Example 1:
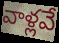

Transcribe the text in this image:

వాళ్లవే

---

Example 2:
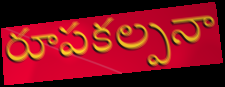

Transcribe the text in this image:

రూపకల్పనా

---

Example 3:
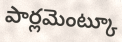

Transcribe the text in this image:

పార్లమెంట్కూ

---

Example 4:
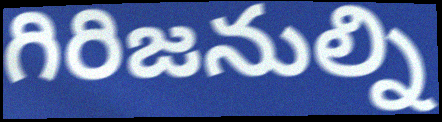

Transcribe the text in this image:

గిరిజనుల్ని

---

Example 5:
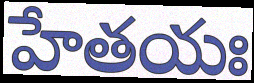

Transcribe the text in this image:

హేతయః